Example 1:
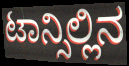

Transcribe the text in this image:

ಟಾನ್ಸಿಲ್ಲಿನ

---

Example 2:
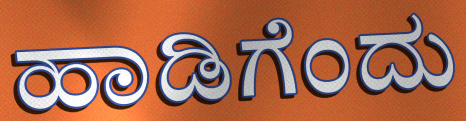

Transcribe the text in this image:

ಹಾಡಿಗೆಂದು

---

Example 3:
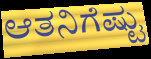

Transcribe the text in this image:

ಆತನಿಗೆಷ್ಟು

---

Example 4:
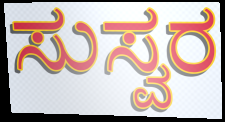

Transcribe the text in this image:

ಸುಸ್ವರ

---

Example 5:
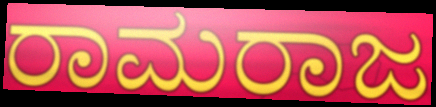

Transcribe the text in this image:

ರಾಮರಾಜ